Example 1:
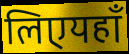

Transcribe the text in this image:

लिएयहाँ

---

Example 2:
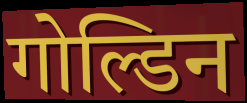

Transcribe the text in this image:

गोल्डिन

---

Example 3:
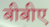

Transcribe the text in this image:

बीबीए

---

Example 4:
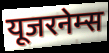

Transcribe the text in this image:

यूजरनेम्स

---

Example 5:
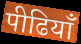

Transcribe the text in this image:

पीढियाँ